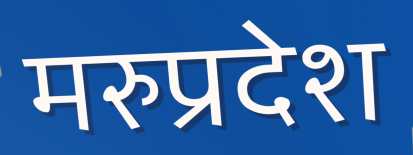
मरुप्रदेश